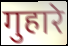
गुहारे